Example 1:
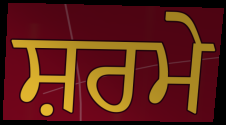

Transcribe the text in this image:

ਸ਼ਰਮੇ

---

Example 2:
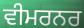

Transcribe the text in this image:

ਵੀਮਰਨਰ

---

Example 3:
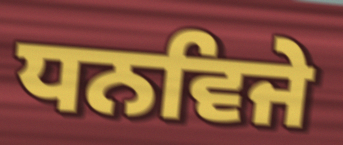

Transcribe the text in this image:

ਧਨਵਿਜੇ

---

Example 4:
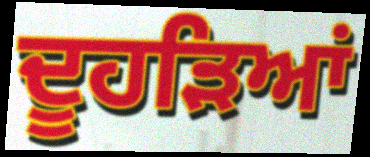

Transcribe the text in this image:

ਦੂਹੜਿਆਂ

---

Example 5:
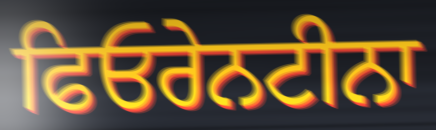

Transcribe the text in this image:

ਫਿਓਰੇਨਟੀਨਾ